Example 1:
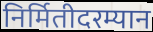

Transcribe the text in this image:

निर्मितीदरम्यान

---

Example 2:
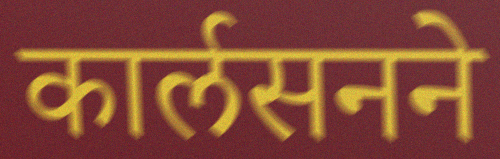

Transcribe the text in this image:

कार्लसनने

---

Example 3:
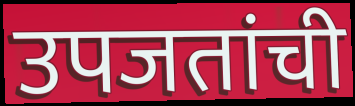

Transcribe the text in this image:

उपजतांची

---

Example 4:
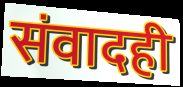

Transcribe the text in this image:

संवादही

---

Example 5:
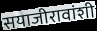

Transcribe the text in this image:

सयाजीरावांशी